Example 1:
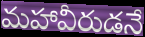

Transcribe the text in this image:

మహావీరుడనే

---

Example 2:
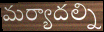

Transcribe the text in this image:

మర్యాదల్ని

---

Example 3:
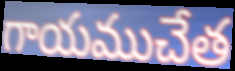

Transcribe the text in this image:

గాయముచేత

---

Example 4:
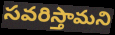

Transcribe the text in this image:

సవరిస్తామని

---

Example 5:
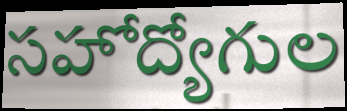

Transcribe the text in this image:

సహోద్యోగుల